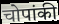
चोपांकी